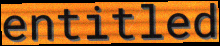
entitled